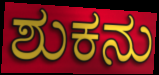
ಶುಕನು